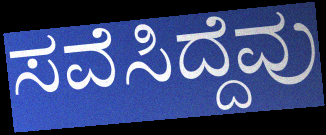
ಸವೆಸಿದ್ದೆವು